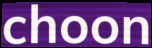
choon